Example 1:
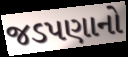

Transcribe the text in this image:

જડપણાનો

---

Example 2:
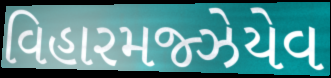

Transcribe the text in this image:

વિહારમજ્ઝેયેવ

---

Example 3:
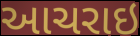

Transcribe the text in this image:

આચરાઇ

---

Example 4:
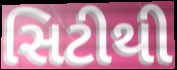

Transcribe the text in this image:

સિટીથી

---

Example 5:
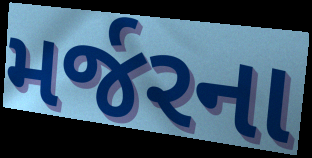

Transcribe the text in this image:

મર્જરના